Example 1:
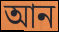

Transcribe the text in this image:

আন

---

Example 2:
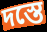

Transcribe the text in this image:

দস্তে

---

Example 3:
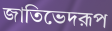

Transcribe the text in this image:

জাতিভেদরূপ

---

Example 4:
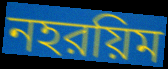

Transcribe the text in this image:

নহরয়িম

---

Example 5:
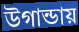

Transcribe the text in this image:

উগান্ডায়